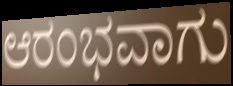
ಆರಂಭವಾಗು